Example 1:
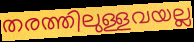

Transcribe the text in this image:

തരത്തിലുള്ളവയല്ല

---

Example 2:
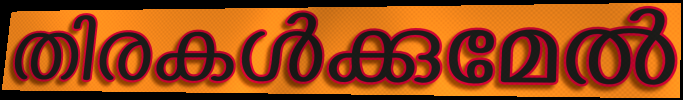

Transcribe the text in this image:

തിരകൾക്കുമേൽ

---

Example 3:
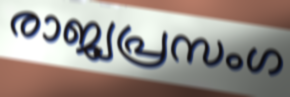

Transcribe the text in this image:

രാജ്യപ്രസംഗ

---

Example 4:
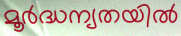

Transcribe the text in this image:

മൂർദ്ധന്യതയിൽ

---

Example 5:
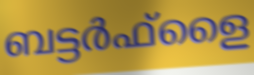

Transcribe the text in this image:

ബട്ടർഫ്ളൈ